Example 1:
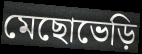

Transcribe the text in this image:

মেছোভেড়ি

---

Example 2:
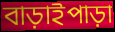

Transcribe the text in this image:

বাড়াইপাড়া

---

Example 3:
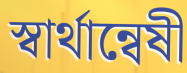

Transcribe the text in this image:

স্বার্থান্বেষী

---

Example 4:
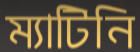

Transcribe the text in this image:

ম্যাটিনি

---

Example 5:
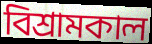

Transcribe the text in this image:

বিশ্রামকাল